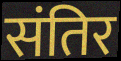
संतिर